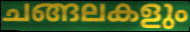
ചങ്ങലകളും